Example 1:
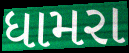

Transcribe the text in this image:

ધામરા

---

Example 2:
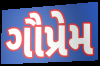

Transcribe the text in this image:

ગૌપ્રેમ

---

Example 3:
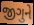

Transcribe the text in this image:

જીગુને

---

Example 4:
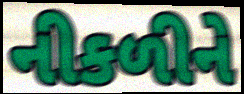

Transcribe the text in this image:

નીકળીને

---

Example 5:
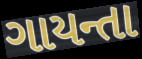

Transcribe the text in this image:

ગાયન્તા